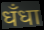
धँधा